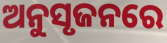
ଅନୁସୃଜନରେ